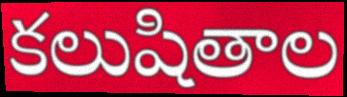
కలుషితాల